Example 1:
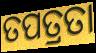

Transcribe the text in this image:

ତପତ୍ରତା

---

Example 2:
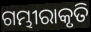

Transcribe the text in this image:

ଗମ୍ଭୀରାକୃତି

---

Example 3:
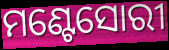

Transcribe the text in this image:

ମଣ୍ଟେସୋରୀ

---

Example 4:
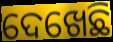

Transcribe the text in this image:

ଦେଖେଛି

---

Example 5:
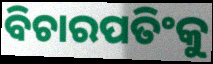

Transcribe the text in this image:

ବିଚାରପତିଂକୁ